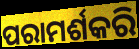
ପରାମର୍ଶକରି